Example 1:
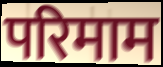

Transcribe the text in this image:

परिमाम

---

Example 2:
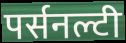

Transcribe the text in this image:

पर्सनल्टी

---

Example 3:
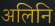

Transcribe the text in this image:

अलिनि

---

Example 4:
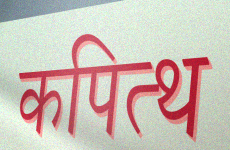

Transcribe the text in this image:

कपित्थ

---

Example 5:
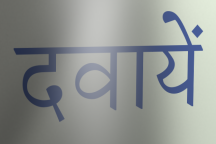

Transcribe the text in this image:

दवायें